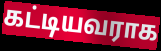
கட்டியவராக